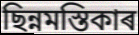
ছিন্নমস্তিকাৰ